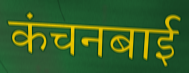
कंचनबाई